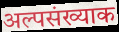
अल्पसंख्याक